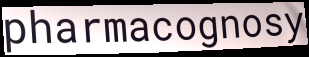
pharmacognosy